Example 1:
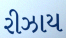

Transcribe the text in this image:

રીઝાય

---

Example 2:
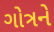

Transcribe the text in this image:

ગોત્રને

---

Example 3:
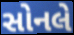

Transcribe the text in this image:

સોનલે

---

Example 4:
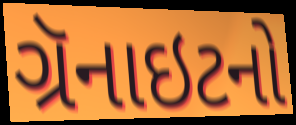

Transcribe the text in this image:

ગ્રૅનાઇટનો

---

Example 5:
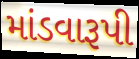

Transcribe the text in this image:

માંડવારૂપી